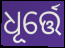
ଧୂର୍ତ୍ତେ